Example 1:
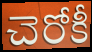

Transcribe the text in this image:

చెరోకీ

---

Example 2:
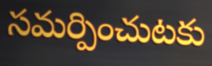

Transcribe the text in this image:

సమర్పించుటకు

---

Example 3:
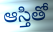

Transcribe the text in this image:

ఆస్తితో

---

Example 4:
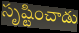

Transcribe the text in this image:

సృష్టించాడు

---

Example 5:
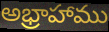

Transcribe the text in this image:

అభ్రాహాము